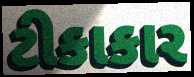
ટીકાકાર